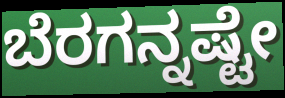
ಬೆರಗನ್ನಷ್ಟೇ